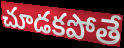
చూడకపోతే